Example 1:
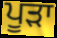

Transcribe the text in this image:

ਪੂੜਾ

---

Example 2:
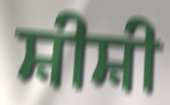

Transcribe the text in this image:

ਸ਼ੀਸ਼ੀ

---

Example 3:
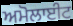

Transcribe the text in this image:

ਅਮੋਲਾਈਟ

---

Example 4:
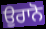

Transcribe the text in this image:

ਉਰਾਨੋ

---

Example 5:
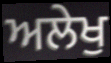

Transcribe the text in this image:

ਅਲੇਖੁ